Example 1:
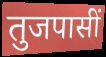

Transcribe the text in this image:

तुजपासीं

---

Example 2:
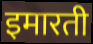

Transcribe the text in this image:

इमारती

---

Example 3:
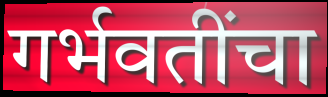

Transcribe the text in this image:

गर्भवतींचा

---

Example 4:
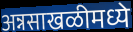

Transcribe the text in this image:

अन्नसाखळीमध्ये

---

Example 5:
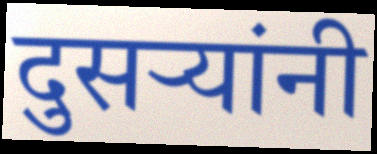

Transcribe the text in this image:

दुसर्‍यांनी